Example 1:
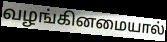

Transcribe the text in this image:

வழங்கினமையால்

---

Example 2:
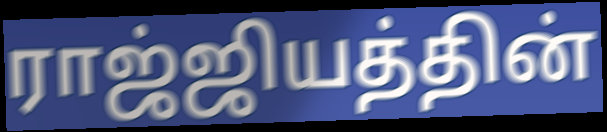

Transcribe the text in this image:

ராஜ்ஜியத்தின்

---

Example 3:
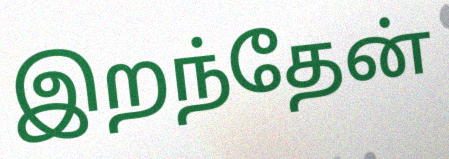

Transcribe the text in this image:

இறந்தேன்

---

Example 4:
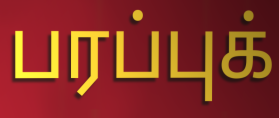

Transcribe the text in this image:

பரப்புக்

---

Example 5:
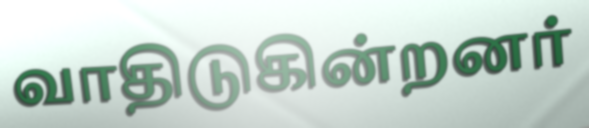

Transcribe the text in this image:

வாதிடுகின்றனர்